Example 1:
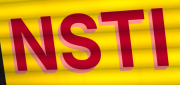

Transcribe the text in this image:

NSTI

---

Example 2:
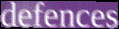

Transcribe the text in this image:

defences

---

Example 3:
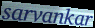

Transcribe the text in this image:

sarvankar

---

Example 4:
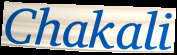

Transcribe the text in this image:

Chakali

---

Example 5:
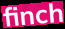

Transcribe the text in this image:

finch